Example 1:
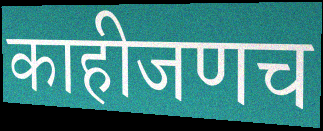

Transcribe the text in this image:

काहीजणच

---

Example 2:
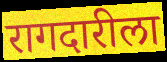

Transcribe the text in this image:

रागदारीला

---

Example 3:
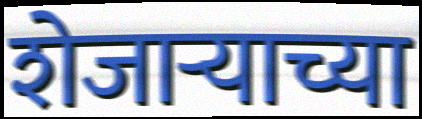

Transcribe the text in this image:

शेजार्‍याच्या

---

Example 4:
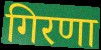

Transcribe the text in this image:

गिरणा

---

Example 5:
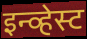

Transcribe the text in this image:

इन्व्हेस्ट